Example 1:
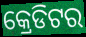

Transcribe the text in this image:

କ୍ରେଡିଟର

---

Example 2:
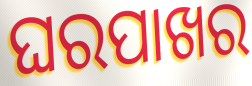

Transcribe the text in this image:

ଘରପାଖର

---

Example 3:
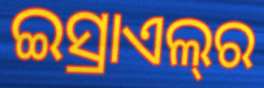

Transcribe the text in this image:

ଇସ୍ରାଏଲ୍‌ର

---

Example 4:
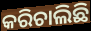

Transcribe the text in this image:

କରିଚାଲିଛି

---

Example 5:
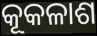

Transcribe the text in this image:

କୂକଳାଶ